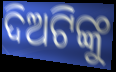
ଦିଅଟିଙ୍କୁ